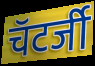
चॅटर्जी